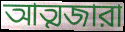
আত্মজারা